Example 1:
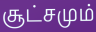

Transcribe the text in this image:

சூட்சமும்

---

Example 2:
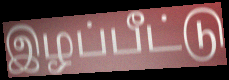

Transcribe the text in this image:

இழப்பீட்டு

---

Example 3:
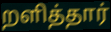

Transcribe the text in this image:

றளித்தார்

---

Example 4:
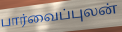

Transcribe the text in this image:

பார்வைப்புலன்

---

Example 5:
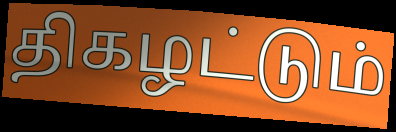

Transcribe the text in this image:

திகழட்டும்